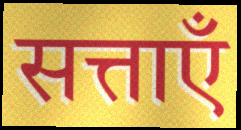
सत्ताएँ